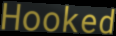
Hooked